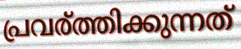
പ്രവര്ത്തിക്കുന്നത്